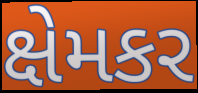
ક્ષેમકર